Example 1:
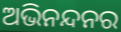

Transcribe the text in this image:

ଅଭିନନ୍ଦନର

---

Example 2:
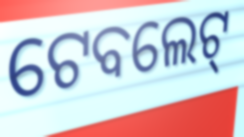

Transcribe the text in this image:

ଟେବଲେଟ୍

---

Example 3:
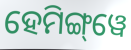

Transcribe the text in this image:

ହେମିଙ୍ଗ୍‌ୱେ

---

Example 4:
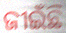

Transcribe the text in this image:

ଜୀଇଁଛି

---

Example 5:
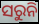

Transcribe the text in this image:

ସରୁନି